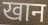
खान